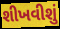
શીખવીશું